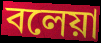
বলেয়া